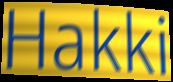
Hakki